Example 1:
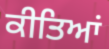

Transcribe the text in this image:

ਕੀਤਿਆਂ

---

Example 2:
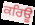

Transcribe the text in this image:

ਕਰਿਊ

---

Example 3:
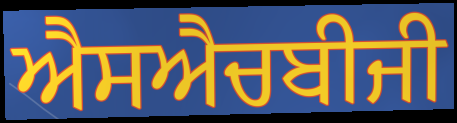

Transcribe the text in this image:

ਐਸਐਚਬੀਜੀ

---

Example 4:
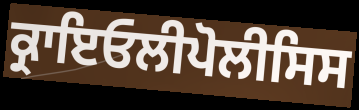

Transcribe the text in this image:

ਕ੍ਰਾਇਓਲੀਪੋਲੀਸਿਸ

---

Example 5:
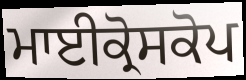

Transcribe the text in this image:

ਮਾਈਕ੍ਰੋਸਕੋਪ